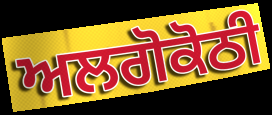
ਅਲਗੋਕੋਠੀ